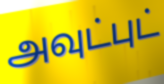
அவுட்புட்